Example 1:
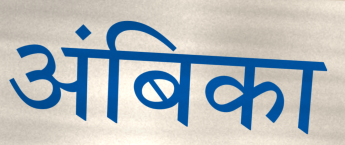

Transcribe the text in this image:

अंबिका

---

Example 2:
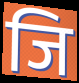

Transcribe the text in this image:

जि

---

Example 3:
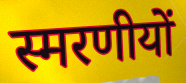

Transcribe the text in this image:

स्मरणीयों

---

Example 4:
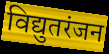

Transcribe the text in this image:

विद्युतरंजन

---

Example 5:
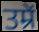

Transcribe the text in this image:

उम्रें